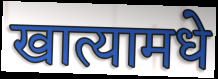
खात्यामधे